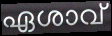
ഏശാവ്